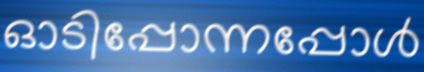
ഓടിപ്പോന്നപ്പോൾ